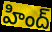
హింద్